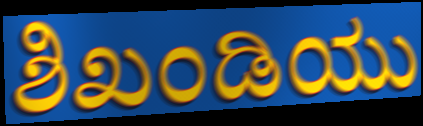
ಶಿಖಂಡಿಯು